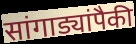
सांगाड्यांपैकी